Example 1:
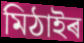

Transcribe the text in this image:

মিঠাইৰ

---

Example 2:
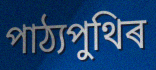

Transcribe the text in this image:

পাঠ্যপুথিৰ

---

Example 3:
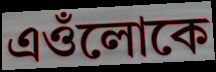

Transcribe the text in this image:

এওঁলোকে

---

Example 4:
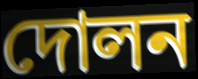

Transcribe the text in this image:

দোলন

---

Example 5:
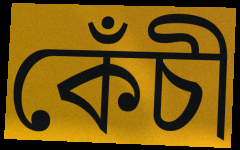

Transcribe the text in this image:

কেঁচী